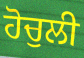
ਹੋਚੁਲੀ